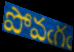
పోవఁగఁ